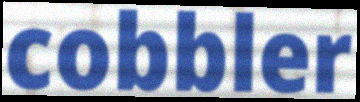
cobbler